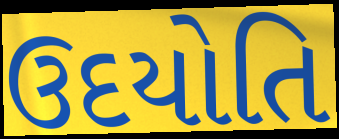
ઉદયોતિ